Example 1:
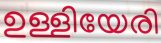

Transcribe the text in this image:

ഉള്ളിയേരി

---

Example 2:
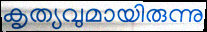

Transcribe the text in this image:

കൃത്യവുമായിരുന്നു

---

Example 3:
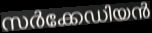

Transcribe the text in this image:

സർക്കേഡിയൻ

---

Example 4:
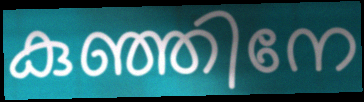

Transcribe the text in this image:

കുഞ്ഞിനേ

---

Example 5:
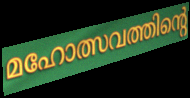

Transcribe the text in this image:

മഹോത്സവത്തിന്റെ